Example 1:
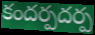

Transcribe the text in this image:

కందర్పదర్ప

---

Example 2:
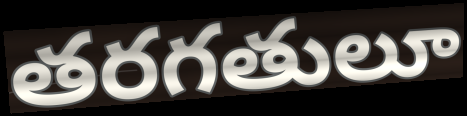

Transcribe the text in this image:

తరగతులూ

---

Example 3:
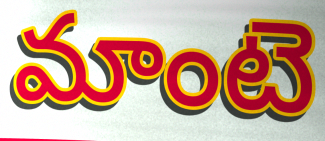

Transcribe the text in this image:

మాంటె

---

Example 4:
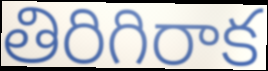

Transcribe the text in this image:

తిరిగిరాక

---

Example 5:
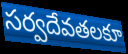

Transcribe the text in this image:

సర్వదేవతలకూ